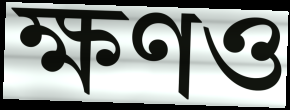
ক্ষণও